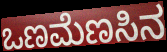
ಒಣಮೆಣಸಿನ